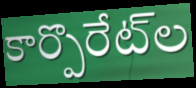
కార్పొరేట్‌ల